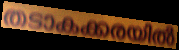
തടാകക്കരയിൽ